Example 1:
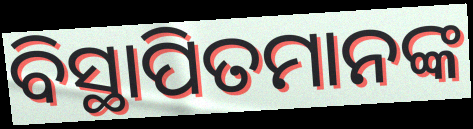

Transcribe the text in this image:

ବିସ୍ଥାପିତମାନଙ୍କ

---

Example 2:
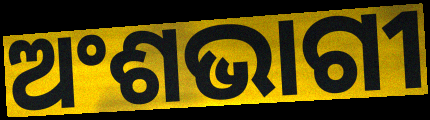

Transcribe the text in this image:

ଅଂଶଭାଗୀ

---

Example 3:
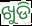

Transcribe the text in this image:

ଖୁଡି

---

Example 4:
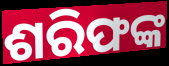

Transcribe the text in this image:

ଶରିଫଙ୍କ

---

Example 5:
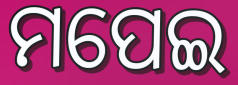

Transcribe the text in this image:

ମପେଇ